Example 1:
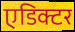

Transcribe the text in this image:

एडिक्टर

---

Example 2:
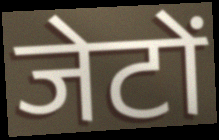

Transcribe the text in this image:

जेटों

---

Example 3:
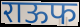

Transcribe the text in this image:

राऊफ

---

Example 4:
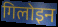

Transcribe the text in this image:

गिलोइन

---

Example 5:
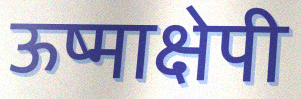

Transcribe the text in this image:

ऊष्माक्षेपी